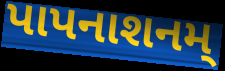
પાપનાશનમ્